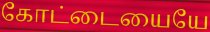
கோட்டையையே